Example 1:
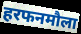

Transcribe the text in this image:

हरफनमौला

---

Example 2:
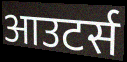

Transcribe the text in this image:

आउटर्स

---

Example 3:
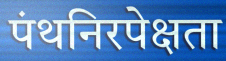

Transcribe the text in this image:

पंथनिरपेक्षता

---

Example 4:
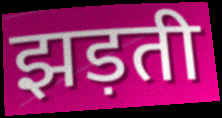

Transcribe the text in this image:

झड़ती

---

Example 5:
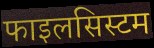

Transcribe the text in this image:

फाइलसिस्टम